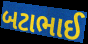
બટાભાઈ